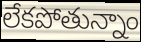
లేకపోతున్నాం